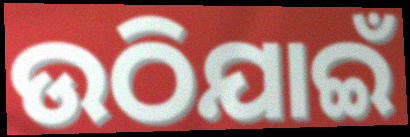
ଉଠିଯାଇଁ